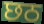
छठ